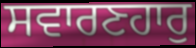
ਸਵਾਰਣਹਾਰੁ